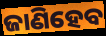
ଜାଣିହେବ